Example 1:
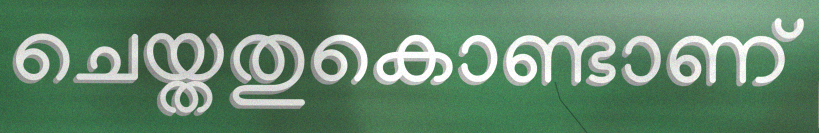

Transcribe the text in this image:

ചെയ്തതുകൊണ്ടാണ്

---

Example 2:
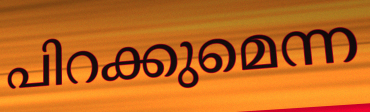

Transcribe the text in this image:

പിറക്കുമെന്ന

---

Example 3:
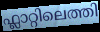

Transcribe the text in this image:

ഫ്ലാറ്റിലെത്തി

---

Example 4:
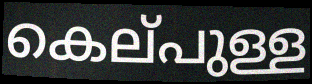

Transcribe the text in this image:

കെല്‌പുള്ള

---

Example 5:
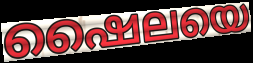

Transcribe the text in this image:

ഷൈലയെ